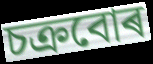
চক্ৰবোৰ